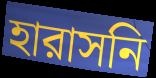
হারাসনি